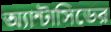
অ্যান্টাসিডের